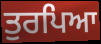
ਤੁਰਪਿਆ